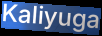
Kaliyuga